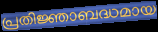
പ്രതിജ്ഞാബദ്ധമായ